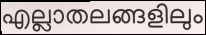
എല്ലാതലങ്ങളിലും